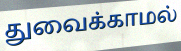
துவைக்காமல்